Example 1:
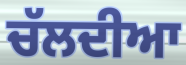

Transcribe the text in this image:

ਚੱਲਦੀਆ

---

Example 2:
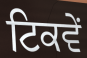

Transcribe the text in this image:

ਟਿਕਵੇਂ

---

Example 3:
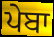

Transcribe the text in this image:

ਪੇਬਾ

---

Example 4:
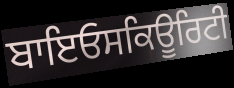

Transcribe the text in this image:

ਬਾਇਓਸਕਿਊਰਿਟੀ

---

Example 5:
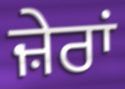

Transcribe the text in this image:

ਜ਼ੇਰਾਂ